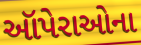
ઑપેરાઓના